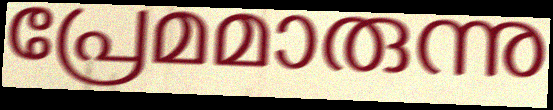
പ്രേമമാരുന്നു